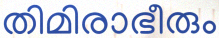
തിമിരാഭീരും